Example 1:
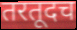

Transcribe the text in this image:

तरतूदच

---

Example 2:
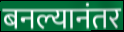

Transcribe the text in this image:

बनल्यानंतर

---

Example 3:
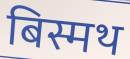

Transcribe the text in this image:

बिस्मथ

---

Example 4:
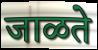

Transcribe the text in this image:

जाळते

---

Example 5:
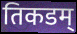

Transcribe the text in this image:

तिकडम्